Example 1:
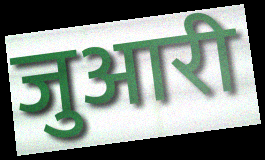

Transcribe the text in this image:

जुआरी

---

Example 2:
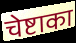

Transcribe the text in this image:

चेष्टाका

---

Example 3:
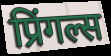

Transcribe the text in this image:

प्रिंगल्स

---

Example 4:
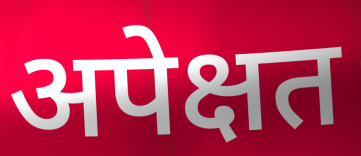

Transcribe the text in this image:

अपेक्षत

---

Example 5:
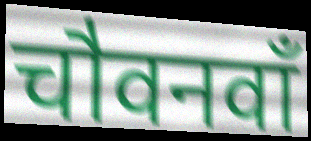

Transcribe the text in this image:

चौवनवाँ